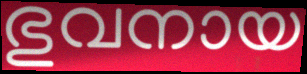
ഭുവനായ